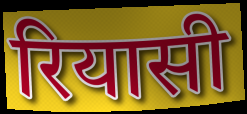
रियासी